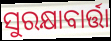
ସୁରକ୍ଷାବାର୍ତ୍ତା